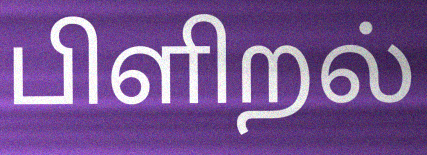
பிளிறல்